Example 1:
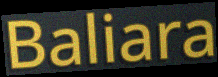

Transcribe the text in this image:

Baliara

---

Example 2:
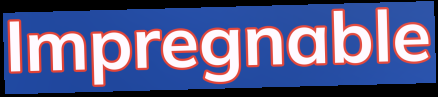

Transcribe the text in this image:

Impregnable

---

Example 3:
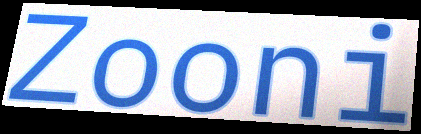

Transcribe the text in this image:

Zooni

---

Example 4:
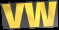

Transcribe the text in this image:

vw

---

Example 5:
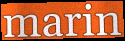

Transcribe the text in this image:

marin